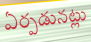
ఏర్పడునట్లు